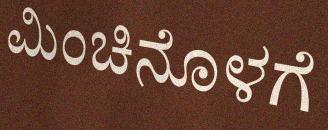
ಮಿಂಚಿನೊಳಗೆ